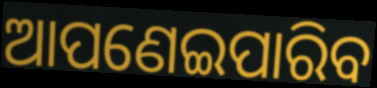
ଆପଣେଇପାରିବ